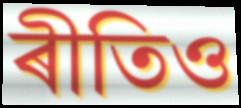
ৰীতিও